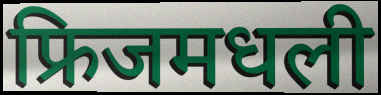
फ्रिजमधली